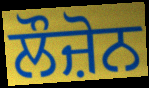
ਲੌਜ਼ੋਨ